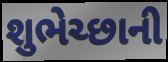
શુભેચ્છાની